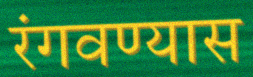
रंगवण्यास